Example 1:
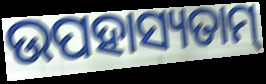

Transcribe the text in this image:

ଉପହାସ୍ୟତାମ୍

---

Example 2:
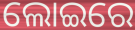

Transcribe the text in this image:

ଲୋଇରେ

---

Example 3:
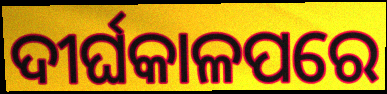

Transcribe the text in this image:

ଦୀର୍ଘକାଳପରେ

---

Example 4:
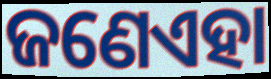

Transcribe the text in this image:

ଜଣେଏହା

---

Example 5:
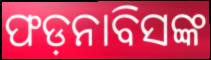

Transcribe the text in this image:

ଫଡ଼ନାବିସଙ୍କ